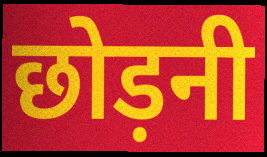
छोड़नी